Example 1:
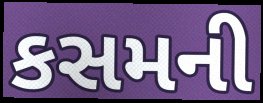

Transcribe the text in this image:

કસમની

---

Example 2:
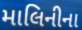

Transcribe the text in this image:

માલિનીના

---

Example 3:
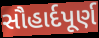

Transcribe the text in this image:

સૌહાર્દપૂર્ણ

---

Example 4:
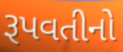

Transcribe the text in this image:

રૂપવતીનો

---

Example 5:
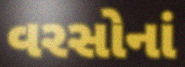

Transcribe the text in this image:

વરસોનાં